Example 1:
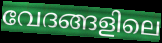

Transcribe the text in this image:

വേദങ്ങളിലെ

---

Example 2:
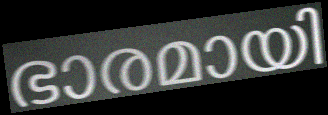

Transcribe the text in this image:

ഭാരമായി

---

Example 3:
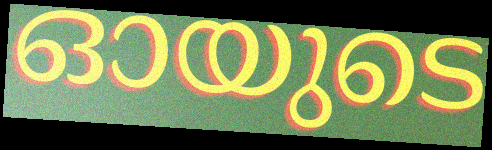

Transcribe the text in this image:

ഓയുടെ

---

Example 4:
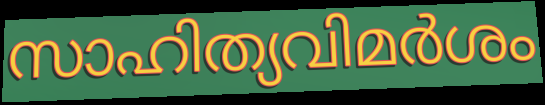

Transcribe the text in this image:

സാഹിത്യവിമർശം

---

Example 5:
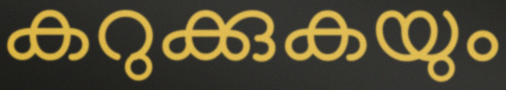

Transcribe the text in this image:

കറുക്കുകയും